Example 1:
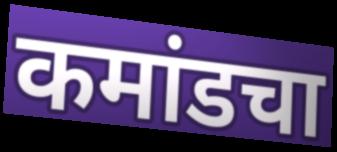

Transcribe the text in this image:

कमांडचा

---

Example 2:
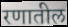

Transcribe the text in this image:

रणातील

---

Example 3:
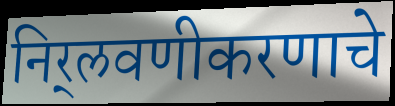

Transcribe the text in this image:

निर्लवणीकरणाचे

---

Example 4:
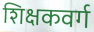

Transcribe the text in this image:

शिक्षकवर्ग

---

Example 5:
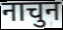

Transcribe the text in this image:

नाचुन